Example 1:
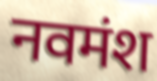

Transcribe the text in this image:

नवमंश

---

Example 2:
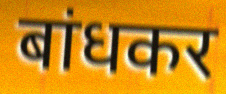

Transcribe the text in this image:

बांधकर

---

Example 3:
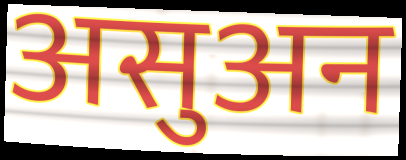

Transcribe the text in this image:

असुअन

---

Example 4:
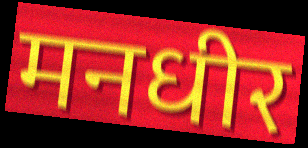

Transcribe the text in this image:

मनधीर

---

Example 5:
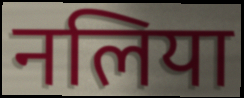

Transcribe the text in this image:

नलिया